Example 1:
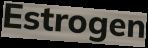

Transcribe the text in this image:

Estrogen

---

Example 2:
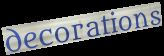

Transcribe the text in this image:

decorations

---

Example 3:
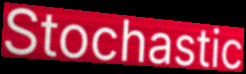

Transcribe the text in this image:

Stochastic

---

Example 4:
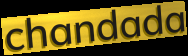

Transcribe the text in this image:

chandada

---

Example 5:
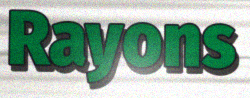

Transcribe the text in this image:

Rayons